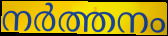
നർത്തനം